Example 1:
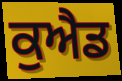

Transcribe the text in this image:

ਕੁਐਡ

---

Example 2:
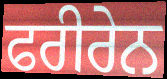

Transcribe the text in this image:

ਫਰੀਰੇਨ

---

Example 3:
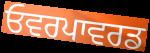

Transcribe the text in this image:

ਓਵਰਪਾਵਰਡ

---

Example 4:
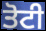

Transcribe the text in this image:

ਤੋਟੀ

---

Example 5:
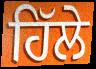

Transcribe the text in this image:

ਹਿੱਲੇ